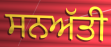
ਸਨਅੱਤੀ